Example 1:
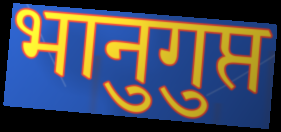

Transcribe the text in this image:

भानुगुप्त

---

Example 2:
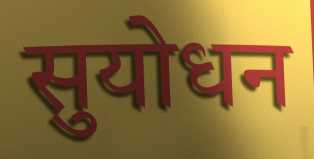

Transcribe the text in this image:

सुयोधन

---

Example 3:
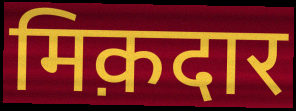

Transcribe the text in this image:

मिक़दार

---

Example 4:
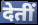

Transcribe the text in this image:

देतीं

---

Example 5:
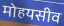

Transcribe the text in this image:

मोहयसीव